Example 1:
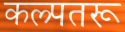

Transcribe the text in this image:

कल्पतरू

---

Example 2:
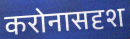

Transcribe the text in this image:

करोनासदृश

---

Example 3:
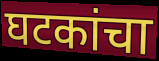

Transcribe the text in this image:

घटकांचा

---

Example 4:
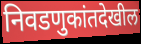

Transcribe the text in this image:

निवडणुकांतदेखील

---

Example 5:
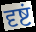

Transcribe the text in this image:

दृष्टं